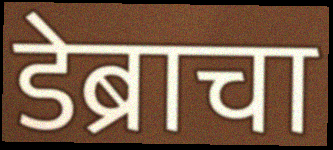
डेब्राचा